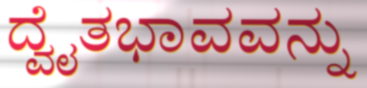
ದ್ವೈತಭಾವವನ್ನು